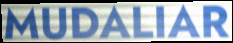
MUDALIAR